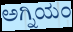
ಅಗ್ನಿಯಂ